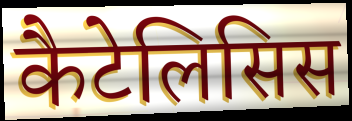
कैटेलिसिस